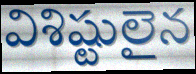
విశిష్టులైన